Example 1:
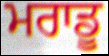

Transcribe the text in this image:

ਮਰਾਡੂ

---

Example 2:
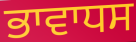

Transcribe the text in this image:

ਭਾਵਾਧਸ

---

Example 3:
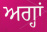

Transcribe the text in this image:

ਅਗ੍ਹਾਂ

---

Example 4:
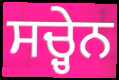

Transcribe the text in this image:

ਸਚ੍ਚੇਨ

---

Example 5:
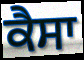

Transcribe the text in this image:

ਕੈਸਾ